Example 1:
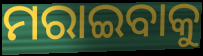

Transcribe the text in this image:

ମରାଇବାକୁ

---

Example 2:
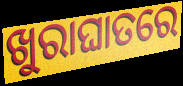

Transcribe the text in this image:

ଖୁରାଘାତରେ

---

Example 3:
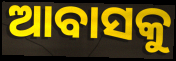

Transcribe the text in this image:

ଆବାସକୁ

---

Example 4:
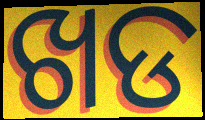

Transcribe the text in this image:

ଖଡ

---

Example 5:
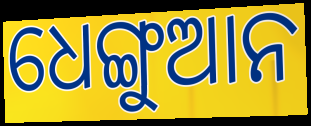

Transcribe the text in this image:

ଧେଙ୍ଗୁଆନ